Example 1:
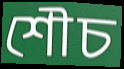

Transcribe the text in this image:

শৌচ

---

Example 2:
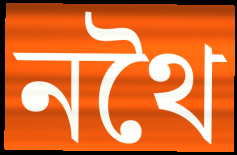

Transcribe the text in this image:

নথৈ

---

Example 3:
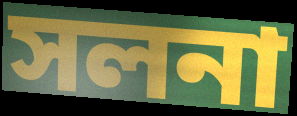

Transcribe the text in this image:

সলনা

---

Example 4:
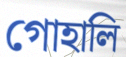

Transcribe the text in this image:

গোহালি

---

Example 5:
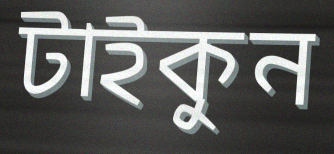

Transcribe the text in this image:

টাইকুন